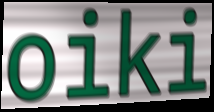
oiki